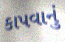
કાપવાનું